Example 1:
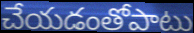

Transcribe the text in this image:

చేయడంతోపాటు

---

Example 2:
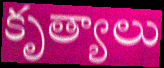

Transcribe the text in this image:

కృత్యాలు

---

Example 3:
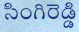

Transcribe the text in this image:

సింగిరెడ్డి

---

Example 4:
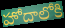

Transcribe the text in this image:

హోదాలోకి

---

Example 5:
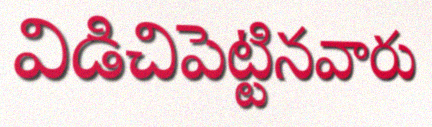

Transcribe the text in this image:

విడిచిపెట్టినవారు